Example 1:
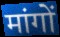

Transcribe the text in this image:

मांगों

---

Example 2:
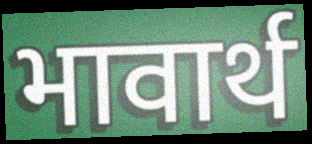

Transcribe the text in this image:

भावार्थ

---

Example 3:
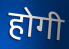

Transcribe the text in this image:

होगी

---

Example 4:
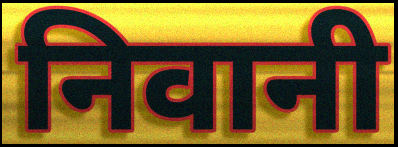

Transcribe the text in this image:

निवानी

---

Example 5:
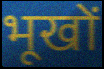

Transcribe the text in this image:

भूखों